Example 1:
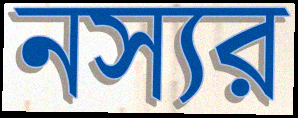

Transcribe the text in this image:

নস্যর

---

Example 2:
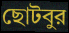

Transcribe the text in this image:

ছোটবুর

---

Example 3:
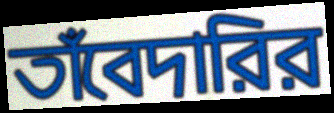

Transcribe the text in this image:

তাঁবেদারির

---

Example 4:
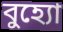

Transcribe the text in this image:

বুহ্যো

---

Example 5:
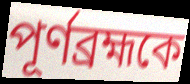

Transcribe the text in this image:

পূর্ণব্রহ্মকে